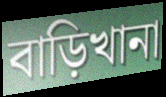
বাড়িখানা